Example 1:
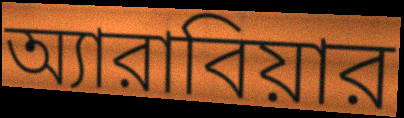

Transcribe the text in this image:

অ্যারাবিয়ার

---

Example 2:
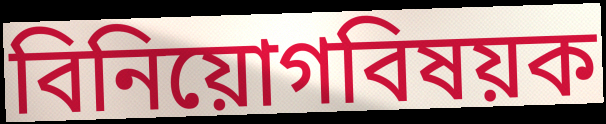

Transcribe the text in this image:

বিনিয়োগবিষয়ক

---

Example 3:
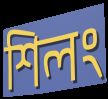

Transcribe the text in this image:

শিলং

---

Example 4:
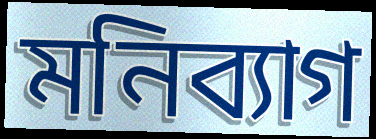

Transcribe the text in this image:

মনিব্যাগ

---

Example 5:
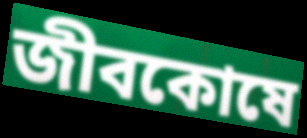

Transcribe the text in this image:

জীবকোষে